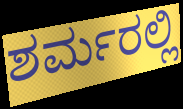
ಶರ್ಮರಲ್ಲಿ